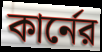
কার্নের